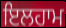
ਇਲਹਾਮ